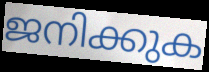
ജനിക്കുക